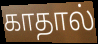
காதால்